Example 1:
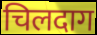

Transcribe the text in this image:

चिलदाग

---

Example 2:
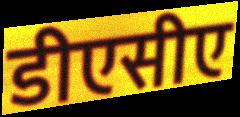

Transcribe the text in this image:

डीएसीए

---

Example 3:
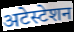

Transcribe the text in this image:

अटेस्टेशन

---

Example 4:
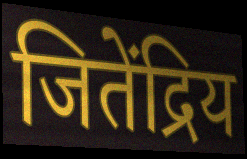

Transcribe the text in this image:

जितेंद्रिय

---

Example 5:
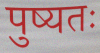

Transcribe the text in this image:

पुष्यतः